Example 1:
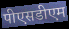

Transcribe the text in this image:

पीएसडीएम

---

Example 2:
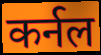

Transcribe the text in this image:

कर्नल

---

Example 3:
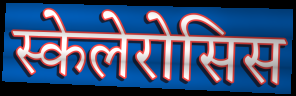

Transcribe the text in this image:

स्केलेरोसिस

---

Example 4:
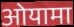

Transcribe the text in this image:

ओयामा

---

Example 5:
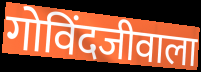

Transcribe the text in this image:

गोविंदजीवाला